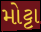
મોટ્ટા